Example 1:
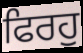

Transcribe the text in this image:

ਫਿਰਹੁ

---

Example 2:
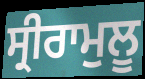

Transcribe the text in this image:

ਸ੍ਰੀਰਾਮੁਲੂ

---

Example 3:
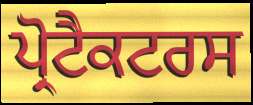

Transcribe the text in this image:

ਪ੍ਰੋਟੈਕਟਰਸ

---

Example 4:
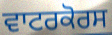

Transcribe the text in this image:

ਵਾਟਰਕੋਰਸ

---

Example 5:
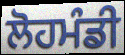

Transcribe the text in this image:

ਲੋਹਮੰਡੀ